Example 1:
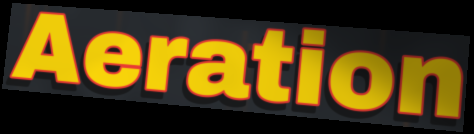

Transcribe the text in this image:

Aeration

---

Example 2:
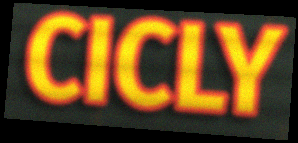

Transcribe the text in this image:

CICLY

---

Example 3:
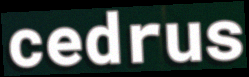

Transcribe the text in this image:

cedrus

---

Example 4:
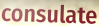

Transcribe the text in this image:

consulate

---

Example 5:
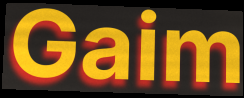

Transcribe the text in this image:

Gaim